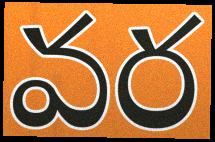
వర